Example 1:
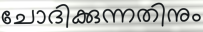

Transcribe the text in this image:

ചോദിക്കുന്നതിനും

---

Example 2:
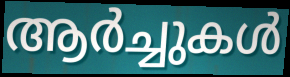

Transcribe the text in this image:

ആർച്ചുകൾ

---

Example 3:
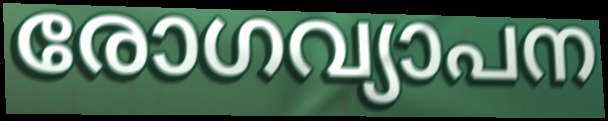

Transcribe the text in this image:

രോഗവ്യാപന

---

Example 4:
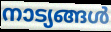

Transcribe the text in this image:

നാട്യങ്ങൾ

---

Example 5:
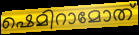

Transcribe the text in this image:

ഷെമിറാമോത്